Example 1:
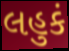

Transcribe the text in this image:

લહુકં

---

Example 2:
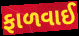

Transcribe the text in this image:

ફાળવાઈ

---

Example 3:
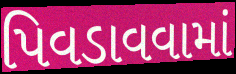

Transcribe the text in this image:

પિવડાવવામાં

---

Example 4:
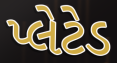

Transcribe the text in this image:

પ્લેટેડ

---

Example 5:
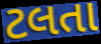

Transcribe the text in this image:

ટલતા